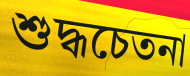
শুদ্ধচেতনা